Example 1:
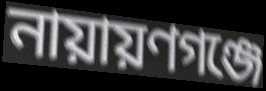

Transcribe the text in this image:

নায়ায়ণগঞ্জে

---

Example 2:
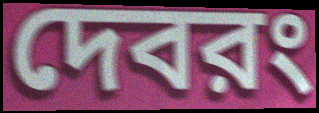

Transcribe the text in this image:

দেবরং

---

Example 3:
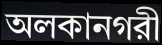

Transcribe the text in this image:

অলকানগরী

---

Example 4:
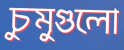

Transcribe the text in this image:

চুমুগুলো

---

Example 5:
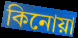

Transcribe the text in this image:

কিনোয়া